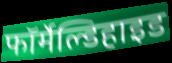
फॉर्मेल्डिहाइड